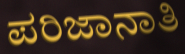
ಪರಿಜಾನಾತಿ